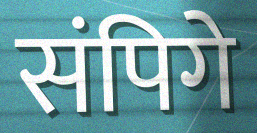
संपिगे